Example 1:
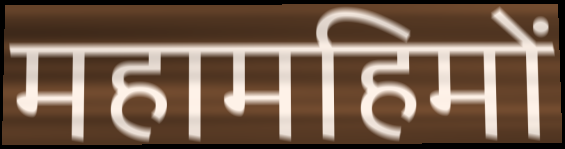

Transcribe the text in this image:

महामहिमों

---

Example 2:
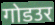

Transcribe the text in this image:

गोडउर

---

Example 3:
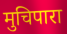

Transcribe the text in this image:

मुचिपारा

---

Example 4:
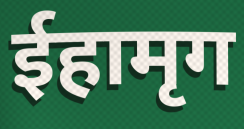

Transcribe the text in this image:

ईहामृग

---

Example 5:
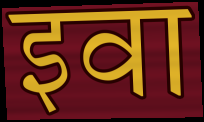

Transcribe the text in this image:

इवा